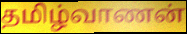
தமிழ்வாணன்